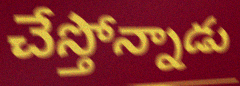
చేస్తోన్నాడు